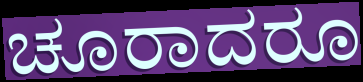
ಚೂರಾದರೂ